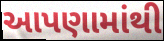
આપણામાંથી